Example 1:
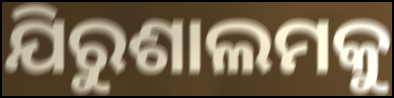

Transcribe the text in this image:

ଯିରୁଶାଲମକୁ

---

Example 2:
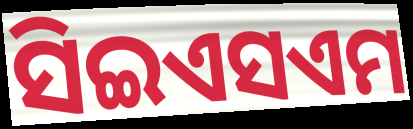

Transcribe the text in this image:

ସିଇଏସଏମ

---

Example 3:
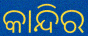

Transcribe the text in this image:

କାନ୍ଦିର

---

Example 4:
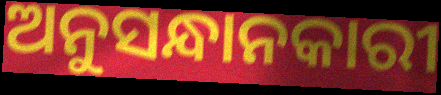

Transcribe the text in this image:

ଅନୁସନ୍ଧାନକାରୀ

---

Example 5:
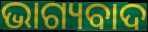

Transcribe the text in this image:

ଭାଗ୍ୟବାଦ